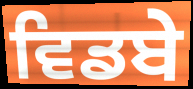
ਵਿਡਬੇ